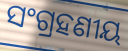
ସଂଗ୍ରହଣୀୟ